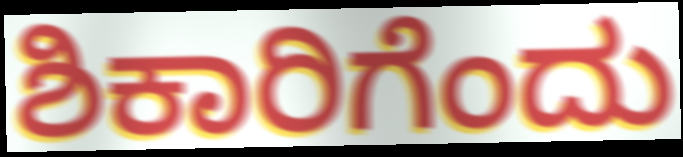
ಶಿಕಾರಿಗೆಂದು